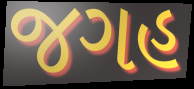
જગહ